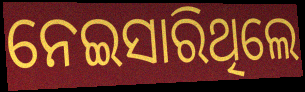
ନେଇସାରିଥିଲେ